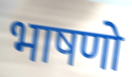
भाषणो